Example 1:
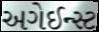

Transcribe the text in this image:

અગેઈન્સ્ટ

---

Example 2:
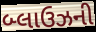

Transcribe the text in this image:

બ્લાઉઝની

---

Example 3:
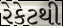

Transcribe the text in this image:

રેકેટથી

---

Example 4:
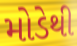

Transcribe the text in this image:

મોડેથી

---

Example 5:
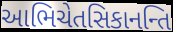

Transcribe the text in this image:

આભિચેતસિકાનન્તિ